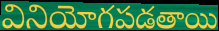
వినియోగపడతాయి